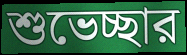
শুভেচ্ছার